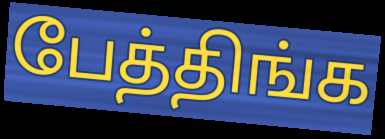
பேத்திங்க